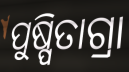
ପୁଷ୍ପିତାଗ୍ରା